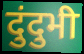
दुंदुभी